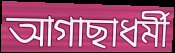
আগাছাধর্মী